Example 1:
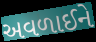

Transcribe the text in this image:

અવળાઈને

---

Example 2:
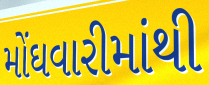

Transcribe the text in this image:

મોંઘવારીમાંથી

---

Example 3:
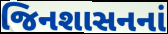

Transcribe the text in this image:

જિનશાસનનાં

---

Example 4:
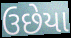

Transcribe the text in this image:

ઉછેયા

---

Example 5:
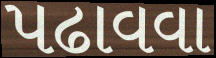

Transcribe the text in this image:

પઢાવવા